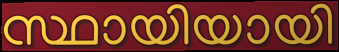
സ്ഥായിയായി